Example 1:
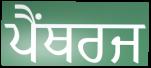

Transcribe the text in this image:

ਪੈਂਥਰਜ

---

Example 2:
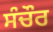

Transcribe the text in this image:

ਸੰਚੌਰ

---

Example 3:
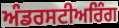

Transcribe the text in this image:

ਅੰਡਰਸਟੀਅਰਿੰਗ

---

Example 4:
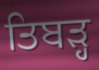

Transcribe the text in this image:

ਤਿਬੜ੍ਹ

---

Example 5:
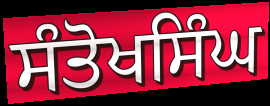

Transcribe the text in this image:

ਸੰਤੋਖਸਿੰਘ